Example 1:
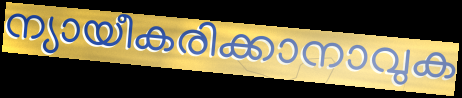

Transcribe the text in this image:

ന്യായീകരിക്കാനാവുക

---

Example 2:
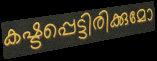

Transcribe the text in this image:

കഷ്ടപ്പെട്ടിരിക്കുമോ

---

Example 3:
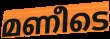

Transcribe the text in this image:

മണീടെ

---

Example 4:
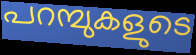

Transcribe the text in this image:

പറമ്പുകളുടെ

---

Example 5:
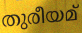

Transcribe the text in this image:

തുരീയമ്